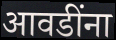
आवडींना